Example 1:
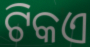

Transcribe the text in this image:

ଟିକଏ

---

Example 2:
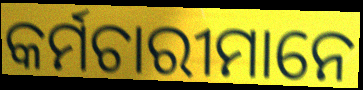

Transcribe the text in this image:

କର୍ମଚାରୀମାନେ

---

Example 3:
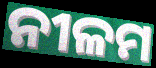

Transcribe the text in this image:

ନୀଳମ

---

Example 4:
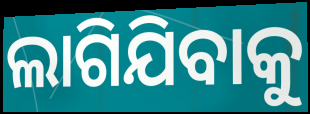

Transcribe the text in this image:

ଲାଗିଯିବାକୁ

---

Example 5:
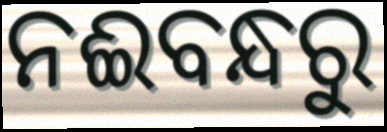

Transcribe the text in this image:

ନଈବନ୍ଧରୁ